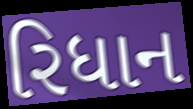
રિધાન